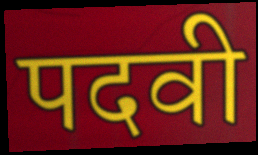
पदवी